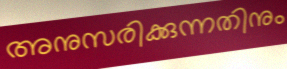
അനുസരിക്കുന്നതിനും